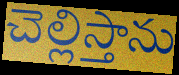
చెల్లిస్తాను